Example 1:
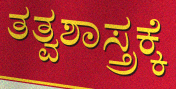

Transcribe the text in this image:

ತತ್ವಶಾಸ್ತ್ರಕ್ಕೆ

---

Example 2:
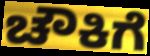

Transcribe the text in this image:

ಚೌಕಿಗೆ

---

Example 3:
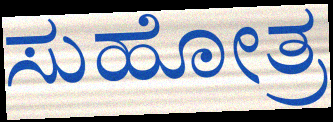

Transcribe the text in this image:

ಸುಹೋತ್ರ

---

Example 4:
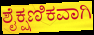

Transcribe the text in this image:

ಶೈಕ್ಷಣಿಕವಾಗಿ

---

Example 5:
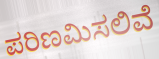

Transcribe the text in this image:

ಪರಿಣಮಿಸಲಿವೆ